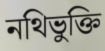
নথিভুক্তি